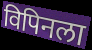
विपिनला